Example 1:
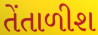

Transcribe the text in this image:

તેંતાળીશ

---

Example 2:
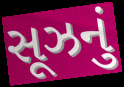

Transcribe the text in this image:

સૂઝનું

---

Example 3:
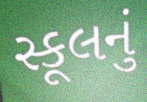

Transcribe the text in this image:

સ્કૂલનું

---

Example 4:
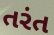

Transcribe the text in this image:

તરંત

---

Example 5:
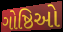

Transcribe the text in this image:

ગોષ્ઠિઓ